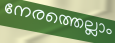
നേരത്തെല്ലാം